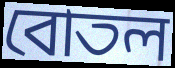
বোতল